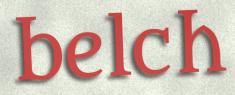
belch